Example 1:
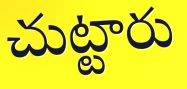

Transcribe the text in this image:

చుట్టారు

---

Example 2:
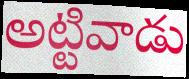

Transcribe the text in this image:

అట్టివాడు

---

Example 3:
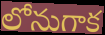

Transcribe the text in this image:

లోనుగాక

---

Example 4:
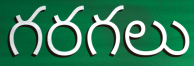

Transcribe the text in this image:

గరగలు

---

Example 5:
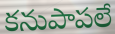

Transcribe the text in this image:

కనుపాపలే